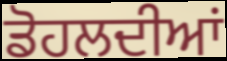
ਡੋਹਲਦੀਆਂ